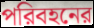
পরিবহনের